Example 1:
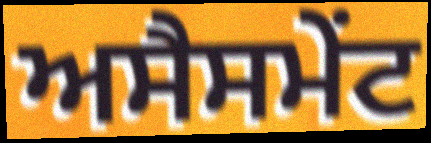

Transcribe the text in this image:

ਅਸੈਸਮੇਂਟ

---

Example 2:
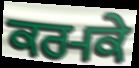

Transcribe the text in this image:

ਕਰ੍ਮਕੇ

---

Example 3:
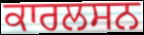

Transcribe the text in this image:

ਕਾਰਲਸਨ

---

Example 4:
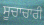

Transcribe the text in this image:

ਸੂਚਾਚਾਰੀ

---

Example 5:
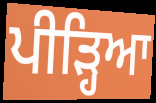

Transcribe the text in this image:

ਪੀੜ੍ਹਿਆ